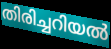
തിരിച്ചറിയൽ